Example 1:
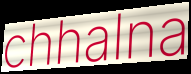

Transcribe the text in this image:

chhalna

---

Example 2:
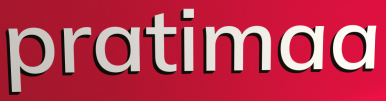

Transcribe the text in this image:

pratimaa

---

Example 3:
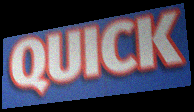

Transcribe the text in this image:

QUICK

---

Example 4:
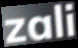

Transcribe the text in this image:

zali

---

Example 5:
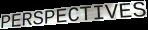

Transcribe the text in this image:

PERSPECTIVES